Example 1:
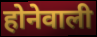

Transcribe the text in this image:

होनेवाली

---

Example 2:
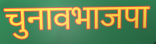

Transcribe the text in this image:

चुनावभाजपा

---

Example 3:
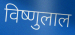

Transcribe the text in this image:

विष्णुलाल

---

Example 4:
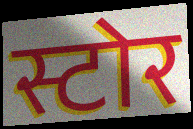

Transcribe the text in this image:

स्टोर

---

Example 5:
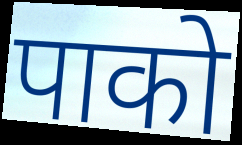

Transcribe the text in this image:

पाको